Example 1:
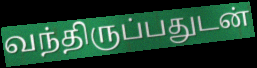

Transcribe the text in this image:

வந்திருப்பதுடன்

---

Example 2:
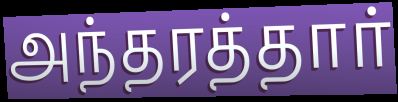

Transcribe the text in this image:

அந்தரத்தார்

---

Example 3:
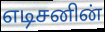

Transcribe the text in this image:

எடிசனின்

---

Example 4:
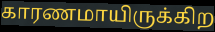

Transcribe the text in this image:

காரணமாயிருக்கிற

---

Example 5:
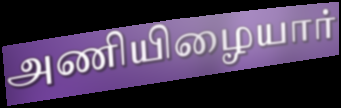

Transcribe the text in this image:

அணியிழையார்